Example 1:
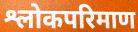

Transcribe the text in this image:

श्लोकपरिमाण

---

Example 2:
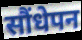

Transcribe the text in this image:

सौंधेपन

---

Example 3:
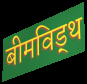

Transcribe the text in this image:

बीमविड्थ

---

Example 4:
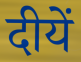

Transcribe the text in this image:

दीयें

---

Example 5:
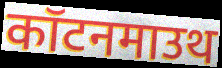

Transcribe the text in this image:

कॉटनमाउथ